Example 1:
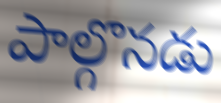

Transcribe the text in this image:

పాల్గొనడు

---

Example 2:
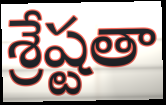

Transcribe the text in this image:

శ్రేష్టతా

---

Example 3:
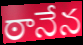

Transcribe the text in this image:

ఠానేన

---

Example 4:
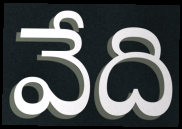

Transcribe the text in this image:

వేది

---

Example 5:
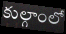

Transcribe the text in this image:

కుల్గాంలో